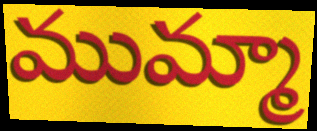
ముమ్మా